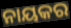
ନାୟକର